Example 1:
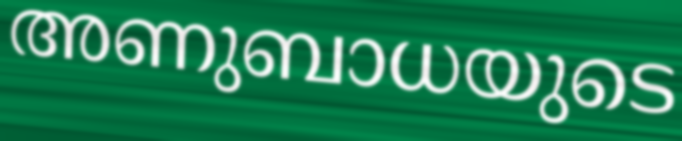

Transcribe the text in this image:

അണുബാധയുടെ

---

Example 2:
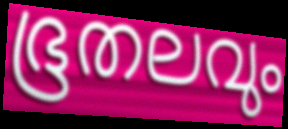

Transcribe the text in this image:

ഭൂതലവും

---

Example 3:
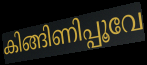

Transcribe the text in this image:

കിങ്ങിണിപ്പൂവേ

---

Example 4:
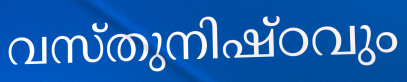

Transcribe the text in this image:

വസ്തുനിഷ്ഠവും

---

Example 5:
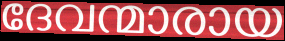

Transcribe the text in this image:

ദേവന്മാരായ